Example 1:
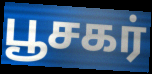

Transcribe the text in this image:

பூசகர்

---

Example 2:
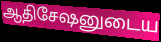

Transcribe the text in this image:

ஆதிசேஷனுடைய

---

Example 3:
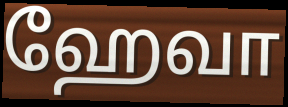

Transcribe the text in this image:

ஹேவா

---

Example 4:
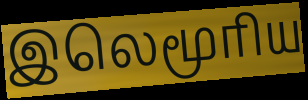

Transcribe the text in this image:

இலெமூரிய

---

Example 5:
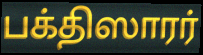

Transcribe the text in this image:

பக்திஸாரர்